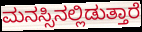
ಮನಸ್ಸಿನಲ್ಲಿಡುತ್ತಾರೆ